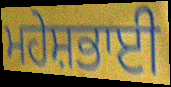
ਮਹੇਸ਼ਭਾਈ